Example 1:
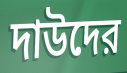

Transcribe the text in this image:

দাউদের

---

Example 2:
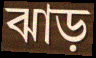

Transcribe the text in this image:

ঝাড়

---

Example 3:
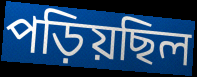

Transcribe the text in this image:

পড়িয়ছিল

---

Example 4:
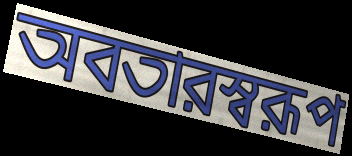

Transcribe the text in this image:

অবতারস্বরূপ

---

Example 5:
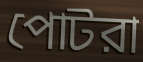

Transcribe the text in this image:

পোটরা